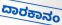
ದಾರಕಾನಂ